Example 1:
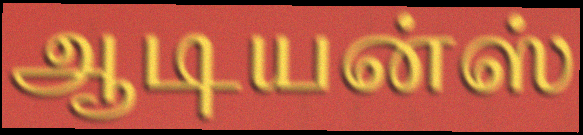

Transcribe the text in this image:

ஆடியன்ஸ்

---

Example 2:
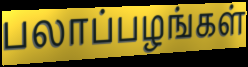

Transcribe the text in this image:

பலாப்பழங்கள்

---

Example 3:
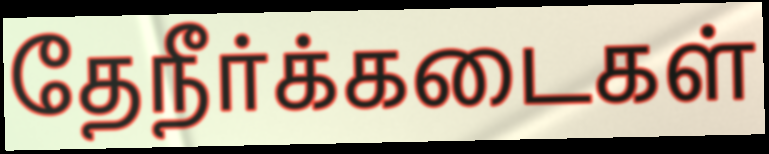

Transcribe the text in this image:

தேநீர்க்கடைகள்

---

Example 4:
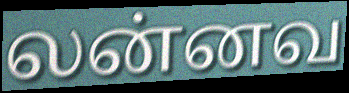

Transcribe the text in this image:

லன்னவ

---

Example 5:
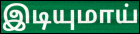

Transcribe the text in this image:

இடியுமாய்